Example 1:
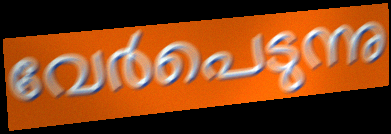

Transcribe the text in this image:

വേർപെടുന്നു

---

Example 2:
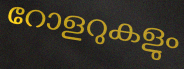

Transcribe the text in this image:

റോളറുകളും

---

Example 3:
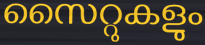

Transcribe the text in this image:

സൈറ്റുകളും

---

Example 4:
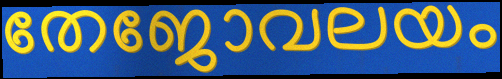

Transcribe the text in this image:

തേജോവലയം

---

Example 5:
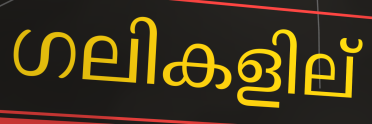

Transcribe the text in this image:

ഗലികളില്